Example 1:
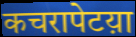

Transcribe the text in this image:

कचरापेटय़ा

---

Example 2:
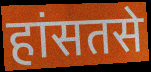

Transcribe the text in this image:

हांसतसे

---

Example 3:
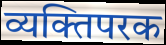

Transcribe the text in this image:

व्यक्तिपरक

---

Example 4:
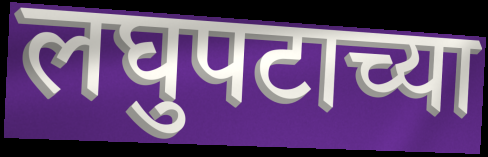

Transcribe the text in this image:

लघुपटाच्या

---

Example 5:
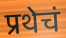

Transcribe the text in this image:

प्रथेचं